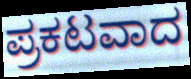
ಪ್ರಕಟವಾದ